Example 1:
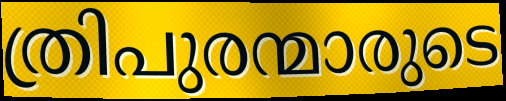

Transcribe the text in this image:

ത്രിപുരന്മാരുടെ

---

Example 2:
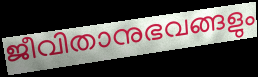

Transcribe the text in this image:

ജീവിതാനുഭവങ്ങളും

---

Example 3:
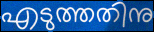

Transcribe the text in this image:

എടുത്തതിനു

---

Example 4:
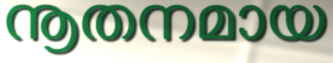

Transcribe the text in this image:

നൂതനമായ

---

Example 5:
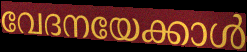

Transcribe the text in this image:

വേദനയേക്കാൾ